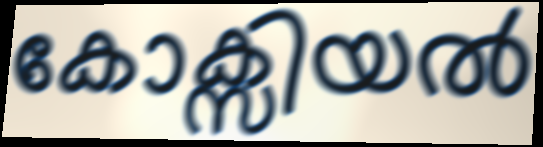
കോക്സിയൽ